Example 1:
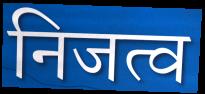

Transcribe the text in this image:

निजत्व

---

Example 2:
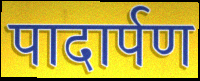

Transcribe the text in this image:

पादार्पण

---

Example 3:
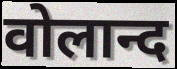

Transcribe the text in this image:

वोलान्द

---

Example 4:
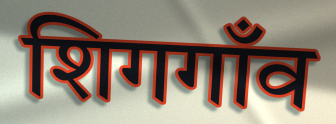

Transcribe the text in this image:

शिगगाँव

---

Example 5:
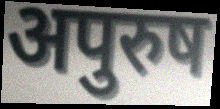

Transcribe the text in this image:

अपुरुष